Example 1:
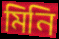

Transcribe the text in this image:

মিনি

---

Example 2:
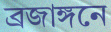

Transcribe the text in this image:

ব্রজাঙ্গনে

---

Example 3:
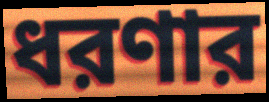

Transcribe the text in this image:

ধরণার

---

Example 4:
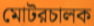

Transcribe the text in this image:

মোটরচালক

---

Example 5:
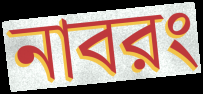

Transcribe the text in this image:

নাবরং